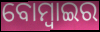
ବୋମ୍ବାଇର